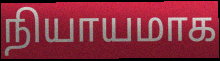
நியாயமாக